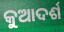
କୁଆଦର୍ଶ